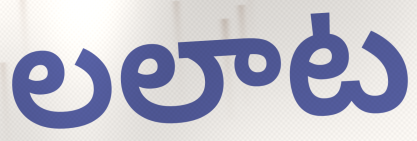
లలాట